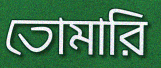
তোমারি